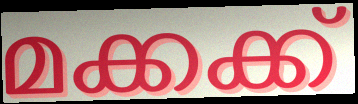
മക്കക്ക്